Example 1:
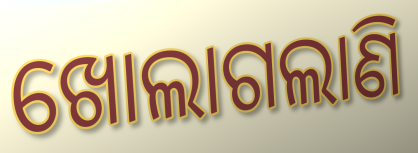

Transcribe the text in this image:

ଖୋଲାଗଲାଣି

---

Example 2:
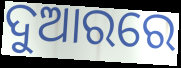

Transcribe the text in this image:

ଦୁଆରରେ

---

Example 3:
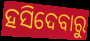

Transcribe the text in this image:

ହସିଦେବାରୁ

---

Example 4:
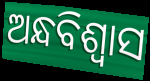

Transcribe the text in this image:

ଅନ୍ଧବିଶ୍ବାସ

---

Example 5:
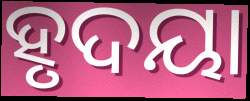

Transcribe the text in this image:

ହୃଦୟା